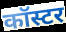
कॉस्टर